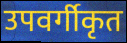
उपवर्गीकृत